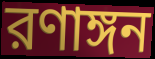
রণাঙ্গন